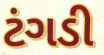
ટંગડી